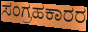
ಸಂಗ್ರಹಕಾರರ